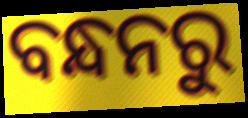
ବନ୍ଧନରୁ